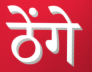
ठेंगे